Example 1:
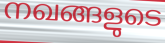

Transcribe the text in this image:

നഖങ്ങളുടെ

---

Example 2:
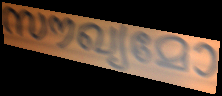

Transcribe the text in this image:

സൗഖ്യമോ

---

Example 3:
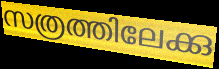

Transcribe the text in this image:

സത്രത്തിലേക്കു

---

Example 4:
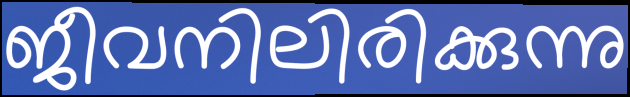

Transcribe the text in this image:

ജീവനിലിരിക്കുന്നു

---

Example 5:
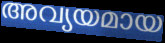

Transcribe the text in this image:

അവ്യയമായ